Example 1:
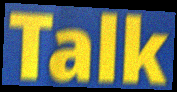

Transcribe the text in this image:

Talk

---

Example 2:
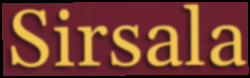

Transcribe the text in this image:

Sirsala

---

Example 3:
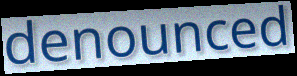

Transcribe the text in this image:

denounced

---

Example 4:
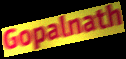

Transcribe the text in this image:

Gopalnath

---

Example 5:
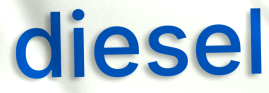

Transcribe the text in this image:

diesel